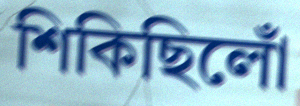
শিকিছিলোঁ